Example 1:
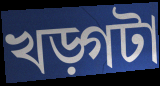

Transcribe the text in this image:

খড়্গটা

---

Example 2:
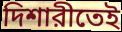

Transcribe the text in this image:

দিশারীতেই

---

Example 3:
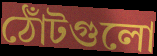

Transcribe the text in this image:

ঠোঁটগুলো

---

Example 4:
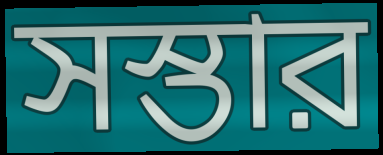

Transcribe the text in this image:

সস্তার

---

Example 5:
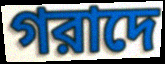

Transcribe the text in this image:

গরাদে